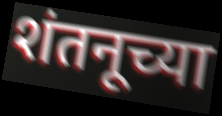
शंतनूच्या